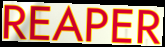
REAPER